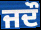
ਜਦੌ